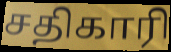
சதிகாரி